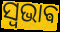
ସ୍ଵଭାଵ